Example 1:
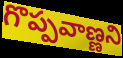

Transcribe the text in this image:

గొప్పవాణ్ణని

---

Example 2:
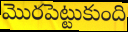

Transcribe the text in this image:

మొరపెట్టుకుంది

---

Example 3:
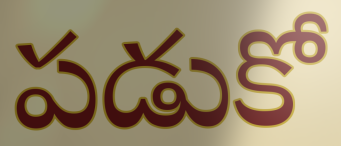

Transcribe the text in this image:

పడుకో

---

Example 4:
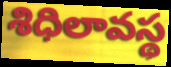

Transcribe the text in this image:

శిధిలావస్థ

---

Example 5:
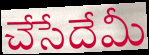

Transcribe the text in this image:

చేసేదేమీ